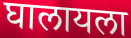
घालायला